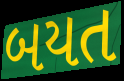
બયત